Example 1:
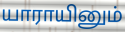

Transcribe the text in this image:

யாராயினும்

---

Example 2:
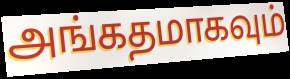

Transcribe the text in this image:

அங்கதமாகவும்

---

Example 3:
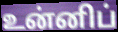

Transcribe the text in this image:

உன்னிப்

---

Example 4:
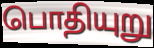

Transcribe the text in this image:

பொதியுறு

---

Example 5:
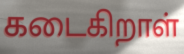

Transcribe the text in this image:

கடைகிறாள்